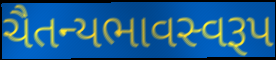
ચૈતન્યભાવસ્વરૂપ